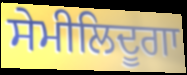
ਸੇਮੀਲਿਦੂਗਾ